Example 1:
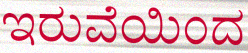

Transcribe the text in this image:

ಇರುವೆಯಿಂದ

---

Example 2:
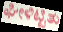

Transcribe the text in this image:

ಘೀಳಿಟ್ಟಿತು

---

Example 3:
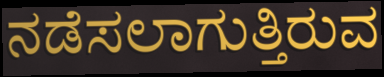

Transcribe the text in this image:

ನಡೆಸಲಾಗುತ್ತಿರುವ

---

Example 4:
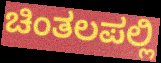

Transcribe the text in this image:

ಚಿಂತಲಪಲ್ಲಿ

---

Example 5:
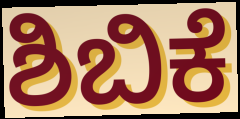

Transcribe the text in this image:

ಶಿಬಿಕೆ